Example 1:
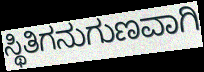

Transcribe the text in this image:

ಸ್ಥಿತಿಗನುಗುಣವಾಗಿ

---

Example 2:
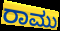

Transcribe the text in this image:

ರಾಮು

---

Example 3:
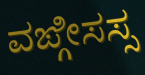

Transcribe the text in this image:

ವಙ್ಗೀಸಸ್ಸ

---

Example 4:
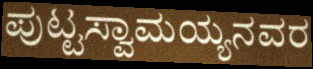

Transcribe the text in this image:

ಪುಟ್ಟಸ್ವಾಮಯ್ಯನವರ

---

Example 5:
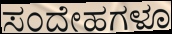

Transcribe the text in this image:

ಸಂದೇಹಗಳೂ